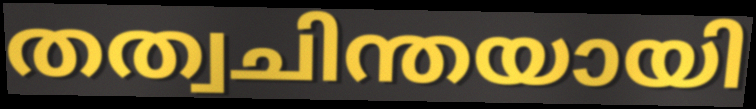
തത്വചിന്തയായി